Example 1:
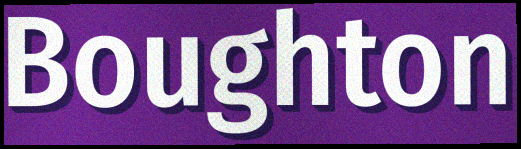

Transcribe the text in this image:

Boughton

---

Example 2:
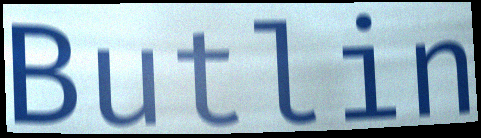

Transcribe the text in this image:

Butlin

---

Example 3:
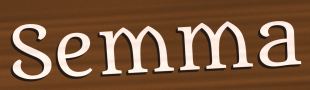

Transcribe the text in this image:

Semma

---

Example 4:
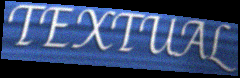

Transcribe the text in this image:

TEXTUAL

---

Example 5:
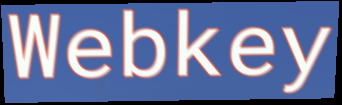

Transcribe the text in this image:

Webkey